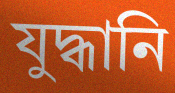
যুদ্ধানি